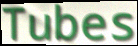
Tubes